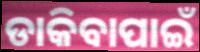
ଡାକିବାପାଇଁ